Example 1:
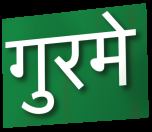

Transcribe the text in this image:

गुरमे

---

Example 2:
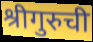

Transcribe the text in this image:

श्रीगुरुची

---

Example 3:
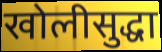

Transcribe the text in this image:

खोलीसुद्धा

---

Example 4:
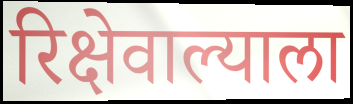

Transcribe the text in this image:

रिक्षेवाल्याला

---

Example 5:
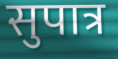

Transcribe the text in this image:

सुपात्र